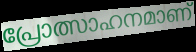
പ്രോത്സാഹനമാണ്